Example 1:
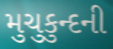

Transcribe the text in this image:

મુચુકુન્દની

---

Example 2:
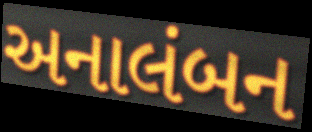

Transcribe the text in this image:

અનાલંબન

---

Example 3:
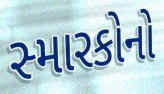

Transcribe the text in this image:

સ્મારકોનો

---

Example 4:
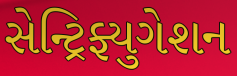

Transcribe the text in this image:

સેન્ટ્રિફ્યુગેશન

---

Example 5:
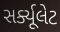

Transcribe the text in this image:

સર્ક્યૂલેટ